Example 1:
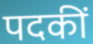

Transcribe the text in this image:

पदकीं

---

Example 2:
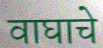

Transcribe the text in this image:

वाघाचे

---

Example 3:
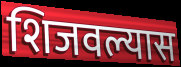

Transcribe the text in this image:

शिजवल्यास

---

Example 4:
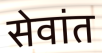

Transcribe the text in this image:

सेवांत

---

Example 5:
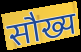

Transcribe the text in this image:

सौख्य